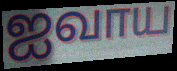
ஐவாய